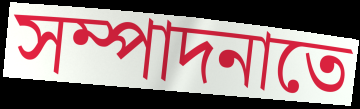
সম্পাদনাতে